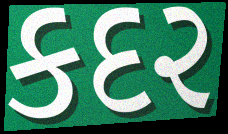
કદર